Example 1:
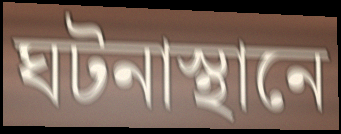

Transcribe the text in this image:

ঘটনাস্থানে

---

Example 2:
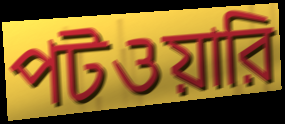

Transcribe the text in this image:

পটওয়ারি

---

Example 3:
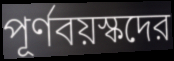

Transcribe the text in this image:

পূর্ণবয়স্কদের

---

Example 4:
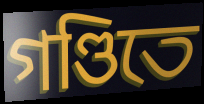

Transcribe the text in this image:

গণ্ডিতে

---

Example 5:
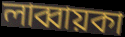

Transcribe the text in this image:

লাব্বায়কা